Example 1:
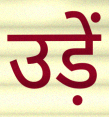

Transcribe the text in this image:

उड़ें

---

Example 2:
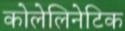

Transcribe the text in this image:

कोलेलिनेटिक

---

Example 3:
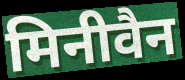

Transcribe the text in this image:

मिनीवैन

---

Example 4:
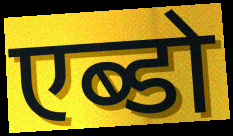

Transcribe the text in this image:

एब्डो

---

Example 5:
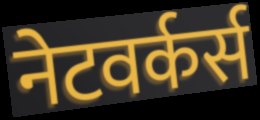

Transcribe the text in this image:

नेटवर्कर्स